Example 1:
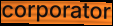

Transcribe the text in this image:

corporator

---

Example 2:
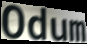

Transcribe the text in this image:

Odum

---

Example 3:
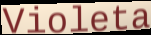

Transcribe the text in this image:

Violeta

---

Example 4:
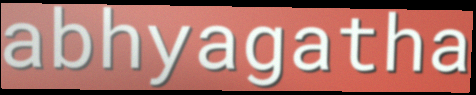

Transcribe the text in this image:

abhyagatha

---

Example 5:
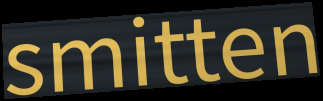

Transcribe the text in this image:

smitten